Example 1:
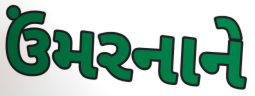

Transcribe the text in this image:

ઉંમરનાને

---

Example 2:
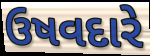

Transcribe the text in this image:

ઉષવદારે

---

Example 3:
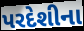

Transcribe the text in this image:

પરદેશીના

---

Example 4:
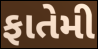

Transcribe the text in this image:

ફાતેમી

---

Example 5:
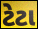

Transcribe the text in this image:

ટેટા